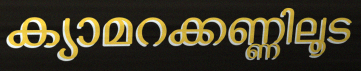
ക്യാമറക്കണ്ണിലൂട